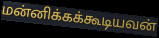
மன்னிக்கக்கூடியவன்